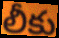
లీకు